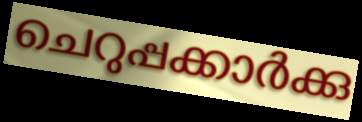
ചെറുപ്പക്കാർക്കു